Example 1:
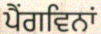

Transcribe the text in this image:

ਪੈਂਗਵਿਨਾਂ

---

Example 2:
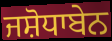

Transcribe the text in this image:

ਜਸ਼ੋਧਾਬੇਨ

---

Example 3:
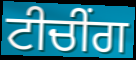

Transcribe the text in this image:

ਟੀਚੀਂਗ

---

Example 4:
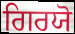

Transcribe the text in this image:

ਗਿਰਯੋ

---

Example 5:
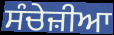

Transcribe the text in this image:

ਸੰਚੇਜ਼ੀਆ